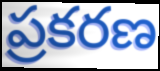
ప్రకరణ